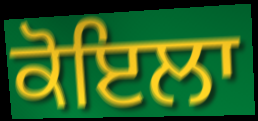
ਕੋਇਲਾ